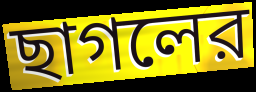
ছাগলের